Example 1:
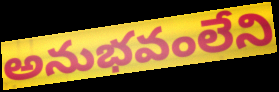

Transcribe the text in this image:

అనుభవంలేని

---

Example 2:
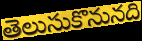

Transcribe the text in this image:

తెలుసుకొనునది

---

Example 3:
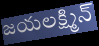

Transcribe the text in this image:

జయలక్ష్మిన్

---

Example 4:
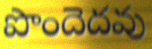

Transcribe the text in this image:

పొందెదవు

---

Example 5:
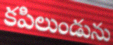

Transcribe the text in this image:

కపిలుండును